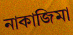
নাকাজিমা